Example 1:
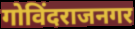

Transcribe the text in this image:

गोविंदराजनगर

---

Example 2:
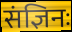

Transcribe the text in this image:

संज्ञिनः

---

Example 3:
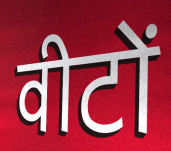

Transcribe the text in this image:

वीटों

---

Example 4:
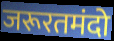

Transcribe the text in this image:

जरूरतमंदो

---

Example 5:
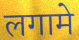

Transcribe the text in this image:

लगामे